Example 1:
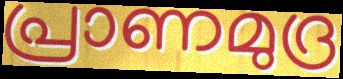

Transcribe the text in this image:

പ്രാണമുദ്ര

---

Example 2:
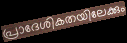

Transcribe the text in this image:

പ്രാദേശികതയിലേക്കും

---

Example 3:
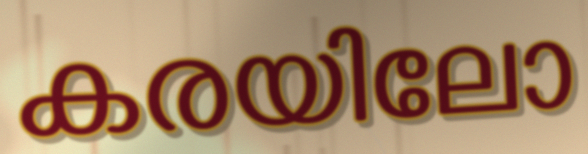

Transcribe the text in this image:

കരയിലോ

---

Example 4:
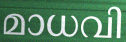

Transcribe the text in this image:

മാധവി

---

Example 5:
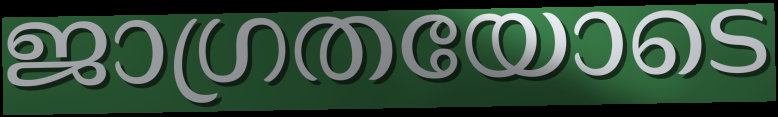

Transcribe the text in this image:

ജാഗ്രതയോടെ